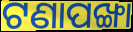
ଟଣାପଙ୍ଖା